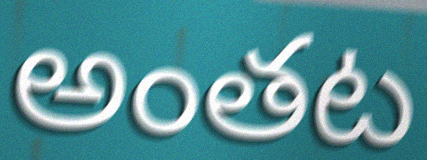
అంతట